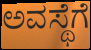
ಅವಸ್ಥೆಗೆ